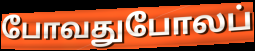
போவதுபோலப்